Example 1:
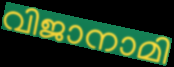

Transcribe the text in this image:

വിജാനാമി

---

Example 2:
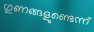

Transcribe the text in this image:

ഗുണങ്ങളുണ്ടെന്ന്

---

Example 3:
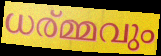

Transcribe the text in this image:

ധര്മ്മവും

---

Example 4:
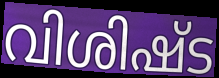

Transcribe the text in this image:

വിശിഷ്ട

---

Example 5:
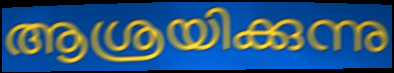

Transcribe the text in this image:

ആശ്രയിക്കുന്നു